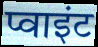
प्वाइंट